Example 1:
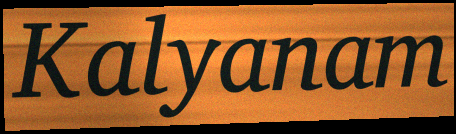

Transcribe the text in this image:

Kalyanam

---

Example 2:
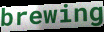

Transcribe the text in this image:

brewing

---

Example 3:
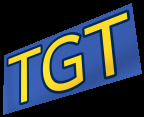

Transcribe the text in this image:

TGT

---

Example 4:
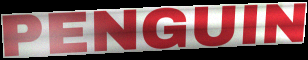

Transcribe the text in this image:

PENGUIN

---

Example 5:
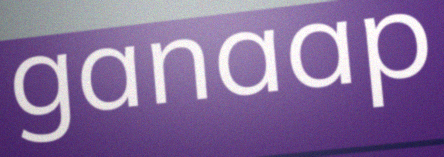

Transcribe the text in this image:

ganaap